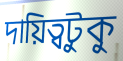
দায়িত্বটুকু